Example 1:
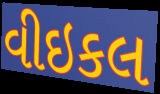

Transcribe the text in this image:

વીઇકલ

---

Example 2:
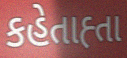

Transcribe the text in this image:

કહેતાહ્તા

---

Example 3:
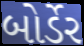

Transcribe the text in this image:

બોર્ડેર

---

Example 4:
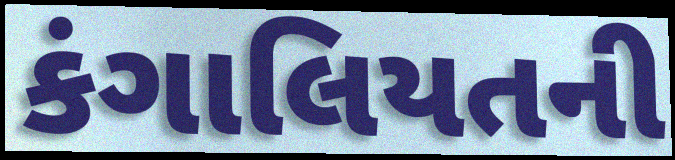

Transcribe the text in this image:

કંગાલિયતની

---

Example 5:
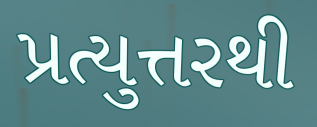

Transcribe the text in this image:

પ્રત્યુત્તરથી